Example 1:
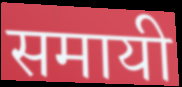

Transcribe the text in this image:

समायी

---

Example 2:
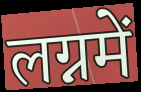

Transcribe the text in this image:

लग्नमें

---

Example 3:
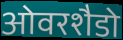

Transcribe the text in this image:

ओवरशैडो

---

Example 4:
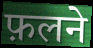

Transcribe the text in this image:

फ़लने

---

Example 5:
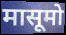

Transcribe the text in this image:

मासूमो